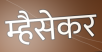
म्हैसेकर